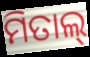
ମିତାଲ୍